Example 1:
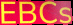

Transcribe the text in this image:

EBCs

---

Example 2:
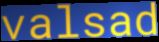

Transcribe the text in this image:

valsad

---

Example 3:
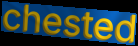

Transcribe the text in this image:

chested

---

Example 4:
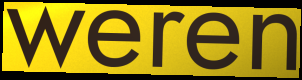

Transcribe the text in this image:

weren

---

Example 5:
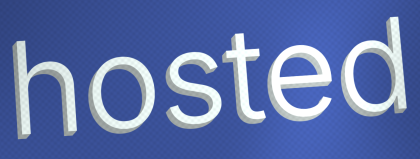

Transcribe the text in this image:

hosted